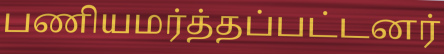
பணியமர்த்தப்பட்டனர்